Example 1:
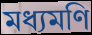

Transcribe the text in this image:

মধ্যমণি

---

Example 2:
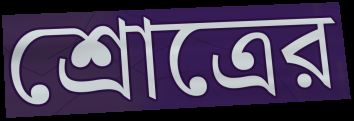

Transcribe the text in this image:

শ্রোত্রের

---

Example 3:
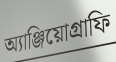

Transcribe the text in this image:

অ্যাঞ্জিয়োগ্রাফি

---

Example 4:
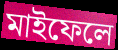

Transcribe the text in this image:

মাইফেলে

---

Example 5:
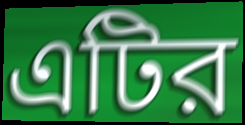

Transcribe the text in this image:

এটির